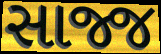
સાજ્જ